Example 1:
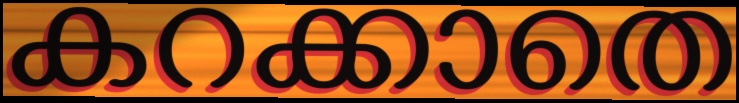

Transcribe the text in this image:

കറക്കാതെ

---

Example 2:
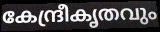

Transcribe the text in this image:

കേന്ദ്രീകൃതവും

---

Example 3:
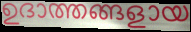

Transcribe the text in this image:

ഉദാത്തങ്ങളായ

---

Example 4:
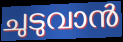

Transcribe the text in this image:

ചുടുവാൻ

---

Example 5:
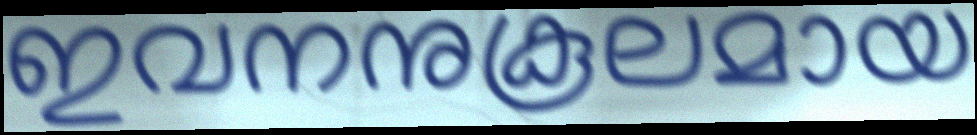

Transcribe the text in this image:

ഇവനനുകൂലമായ